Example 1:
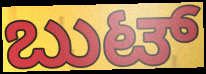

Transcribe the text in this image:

ಬುಟ್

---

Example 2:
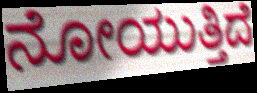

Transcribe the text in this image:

ನೋಯುತ್ತಿದೆ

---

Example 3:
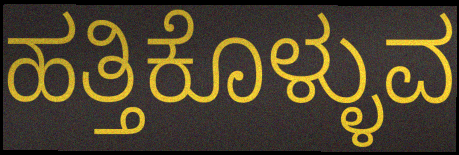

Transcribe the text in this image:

ಹತ್ತಿಕೊಳ್ಳುವ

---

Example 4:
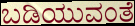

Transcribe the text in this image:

ಬಡಿಯುವಂತೆ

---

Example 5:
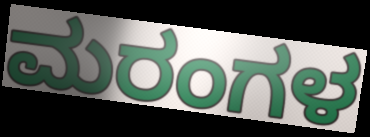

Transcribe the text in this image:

ಮರಂಗಳ